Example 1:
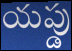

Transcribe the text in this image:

యప్డు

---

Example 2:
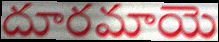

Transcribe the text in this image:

దూరమాయె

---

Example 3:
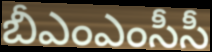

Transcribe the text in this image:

బీఎంఎంసీసీ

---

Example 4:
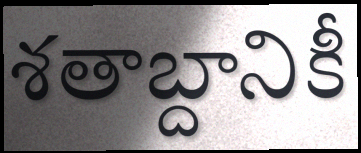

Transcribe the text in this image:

శతాబ్దానికీ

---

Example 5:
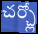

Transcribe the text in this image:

చర్చ్లో